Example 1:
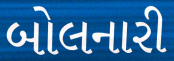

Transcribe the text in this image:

બોલનારી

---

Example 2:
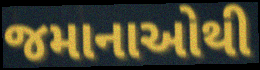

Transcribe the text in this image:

જમાનાઓથી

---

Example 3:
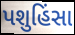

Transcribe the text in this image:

પશુહિંસા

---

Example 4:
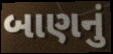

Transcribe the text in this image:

બાણનું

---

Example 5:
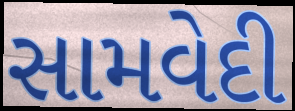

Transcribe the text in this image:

સામવેદી